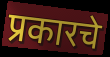
प्रकारचे